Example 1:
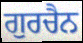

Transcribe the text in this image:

ਗੁਰਚੈਨ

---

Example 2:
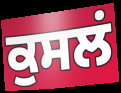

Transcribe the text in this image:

ਕੁਸਲਂ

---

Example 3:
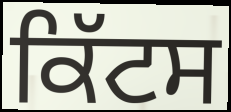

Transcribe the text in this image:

ਕਿੱਟਸ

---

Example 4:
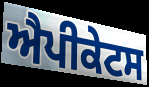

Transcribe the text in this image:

ਐਪੀਕੇਟਸ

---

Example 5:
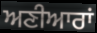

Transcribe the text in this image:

ਅਣੀਆਰਾਂ